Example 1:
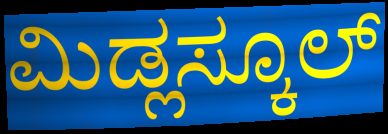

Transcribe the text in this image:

ಮಿಡ್ಲಸ್ಕೂಲ್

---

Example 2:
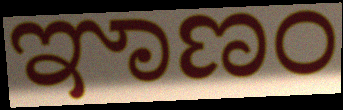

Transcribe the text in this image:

ಞಾಣಂ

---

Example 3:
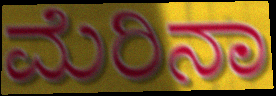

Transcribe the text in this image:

ಮೆರಿನಾ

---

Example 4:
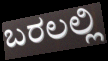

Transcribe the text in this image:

ಬರಲಲ್ಲಿ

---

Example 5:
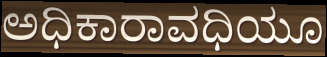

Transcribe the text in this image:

ಅಧಿಕಾರಾವಧಿಯೂ